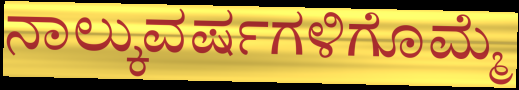
ನಾಲ್ಕುವರ್ಷಗಳಿಗೊಮ್ಮೆ